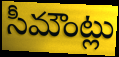
సీమౌంట్లు